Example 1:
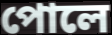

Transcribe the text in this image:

পোলে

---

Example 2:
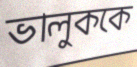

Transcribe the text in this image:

ভালুককে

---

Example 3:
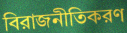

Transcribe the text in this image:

বিরাজনীতিকরণ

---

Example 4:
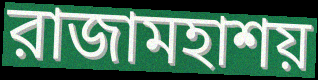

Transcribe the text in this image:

রাজামহাশয়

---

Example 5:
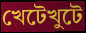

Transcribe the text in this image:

খেটেখুটে